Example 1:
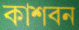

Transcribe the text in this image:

কাশবন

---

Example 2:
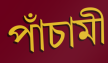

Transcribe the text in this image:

পাঁচামী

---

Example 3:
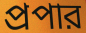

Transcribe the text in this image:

প্রপার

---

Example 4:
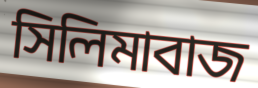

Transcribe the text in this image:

সিলিমাবাজ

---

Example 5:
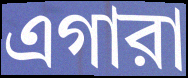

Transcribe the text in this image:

এগারা